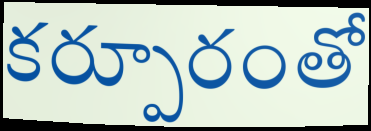
కర్పూరంతో